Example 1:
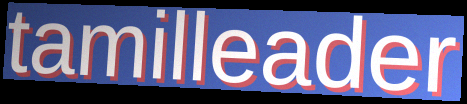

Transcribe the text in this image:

tamilleader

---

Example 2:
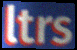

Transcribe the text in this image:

ltrs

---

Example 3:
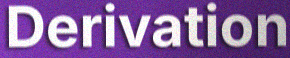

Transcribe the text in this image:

Derivation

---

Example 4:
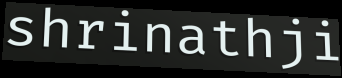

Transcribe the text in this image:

shrinathji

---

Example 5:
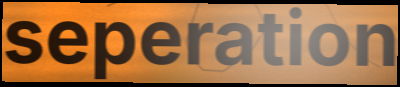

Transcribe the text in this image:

seperation